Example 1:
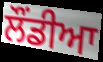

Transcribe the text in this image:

ਲੌਂਡੀਆ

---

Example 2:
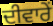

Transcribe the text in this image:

ਦੀਵਾਰੇਂ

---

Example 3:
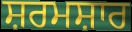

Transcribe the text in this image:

ਸ਼ਰਮਸ਼ਾਰ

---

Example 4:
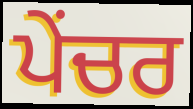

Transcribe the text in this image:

ਪੇਂਚਰ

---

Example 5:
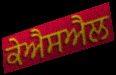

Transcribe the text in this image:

ਕੇਐਸਐਲ